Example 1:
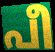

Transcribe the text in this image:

പീ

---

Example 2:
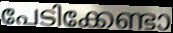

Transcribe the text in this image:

പേടിക്കേണ്ടാ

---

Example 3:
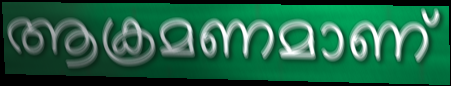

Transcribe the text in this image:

ആക്രമണമാണ്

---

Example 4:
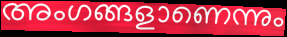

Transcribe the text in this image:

അംഗങ്ങളാണെന്നും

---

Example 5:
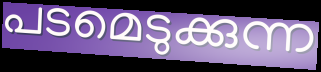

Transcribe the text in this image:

പടമെടുക്കുന്ന